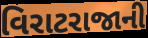
વિરાટરાજાની